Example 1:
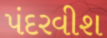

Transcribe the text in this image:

પંદરવીશ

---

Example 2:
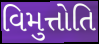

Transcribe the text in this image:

વિમુત્તોતિ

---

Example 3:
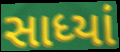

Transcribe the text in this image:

સાધ્યાં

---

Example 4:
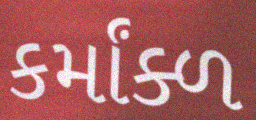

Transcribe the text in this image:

કર્માંક્ળ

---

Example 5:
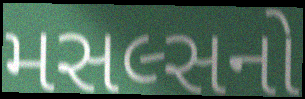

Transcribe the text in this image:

મસલ્સનો